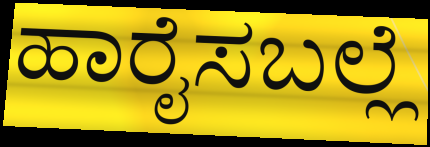
ಹಾರೈಸಬಲ್ಲೆ